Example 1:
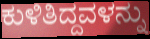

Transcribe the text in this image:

ಕುಳಿತಿದ್ದವಳನ್ನು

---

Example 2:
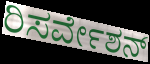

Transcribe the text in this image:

ರಿಸರ್ವೇಶನ್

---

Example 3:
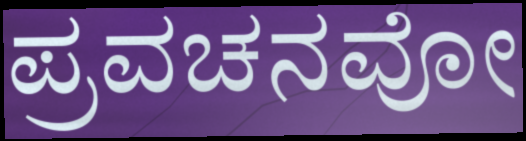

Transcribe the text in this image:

ಪ್ರವಚನವೋ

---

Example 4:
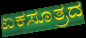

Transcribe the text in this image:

ಏಕಸೂತ್ರದ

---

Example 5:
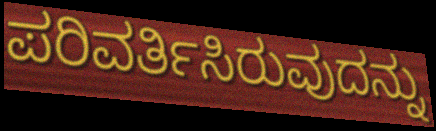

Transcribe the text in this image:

ಪರಿವರ್ತಿಸಿರುವುದನ್ನು